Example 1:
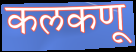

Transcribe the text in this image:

कलकणू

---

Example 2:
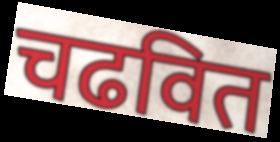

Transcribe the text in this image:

चढवित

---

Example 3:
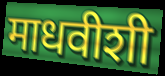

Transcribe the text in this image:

माधवीशी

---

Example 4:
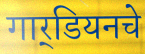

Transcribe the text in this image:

गार्डियनचे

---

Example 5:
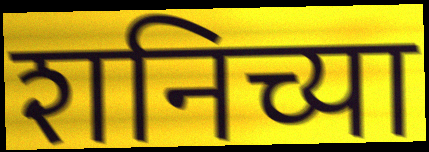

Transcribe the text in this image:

शनिच्या